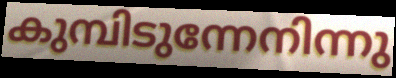
കുമ്പിടുന്നേനിന്നു